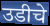
उडीचे